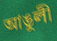
আঙুলী